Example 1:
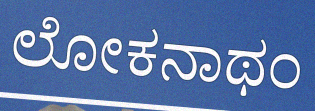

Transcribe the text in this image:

ಲೋಕನಾಥಂ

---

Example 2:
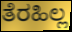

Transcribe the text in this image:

ತೆರಹಿಲ್ಲ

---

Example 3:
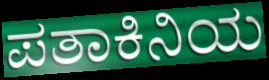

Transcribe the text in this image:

ಪತಾಕಿನಿಯ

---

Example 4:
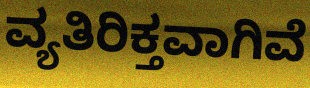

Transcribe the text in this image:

ವ್ಯತಿರಿಕ್ತವಾಗಿವೆ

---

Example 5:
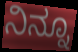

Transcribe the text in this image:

ನಿನ್ನೂ